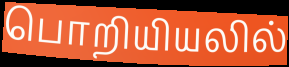
பொறியியலில்